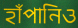
হাঁপানিও